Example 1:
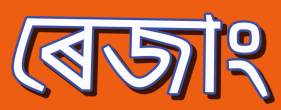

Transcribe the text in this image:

ৰেজাং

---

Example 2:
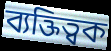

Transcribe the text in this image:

ব্যক্তিত্বক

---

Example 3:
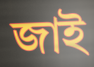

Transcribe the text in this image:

জাই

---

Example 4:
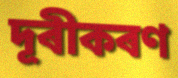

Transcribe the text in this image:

দূৰীকৰণ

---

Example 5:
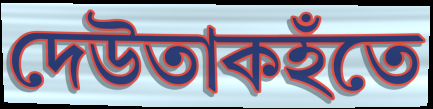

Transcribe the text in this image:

দেউতাকহঁতে